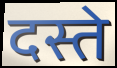
दस्ते